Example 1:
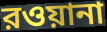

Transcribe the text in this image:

রওয়ানা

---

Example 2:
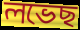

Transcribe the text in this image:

লভেছ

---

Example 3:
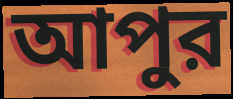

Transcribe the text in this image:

আপুর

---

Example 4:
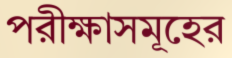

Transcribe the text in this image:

পরীক্ষাসমূহের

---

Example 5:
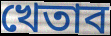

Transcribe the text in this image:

খেতাব